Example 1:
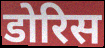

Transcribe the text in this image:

डोरिस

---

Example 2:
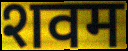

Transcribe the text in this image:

शवम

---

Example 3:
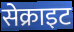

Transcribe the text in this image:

सेक्राइट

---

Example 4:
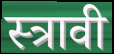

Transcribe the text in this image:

स्त्रावी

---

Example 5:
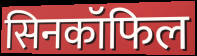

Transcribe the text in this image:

सिनकॉफिल